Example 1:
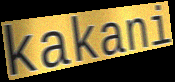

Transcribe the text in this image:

kakani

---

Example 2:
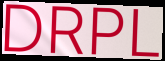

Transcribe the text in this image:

DRPL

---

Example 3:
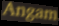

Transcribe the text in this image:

Angam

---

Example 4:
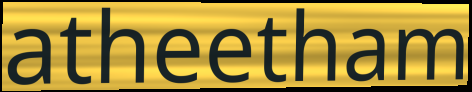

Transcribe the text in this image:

atheetham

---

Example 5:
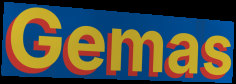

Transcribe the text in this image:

Gemas